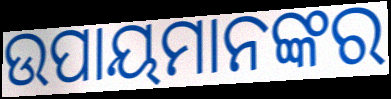
ଉପାୟମାନଙ୍କର